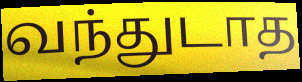
வந்துடாத